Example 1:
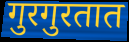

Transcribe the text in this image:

गुरगुरतात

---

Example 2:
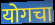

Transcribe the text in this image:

योगचा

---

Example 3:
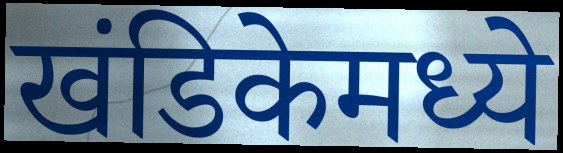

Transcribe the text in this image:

खंडिकेमध्ये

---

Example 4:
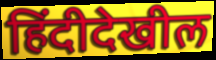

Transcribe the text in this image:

हिंदीदेखील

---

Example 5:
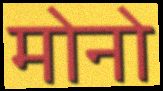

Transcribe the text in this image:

मोनो